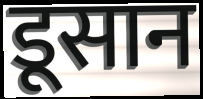
डूसान